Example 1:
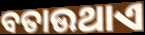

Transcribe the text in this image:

ବତାଉଥାଏ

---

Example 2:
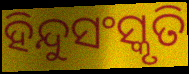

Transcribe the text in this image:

ହିନ୍ଦୁସଂସ୍କୃତି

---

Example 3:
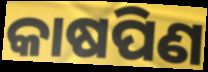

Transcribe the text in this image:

କାଷପିଣ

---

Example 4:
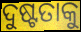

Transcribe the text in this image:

ଦୁଷ୍ଟତାକୁ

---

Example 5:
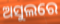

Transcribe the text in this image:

ଅସୁଲରେ